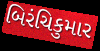
બિરંચિકુમાર